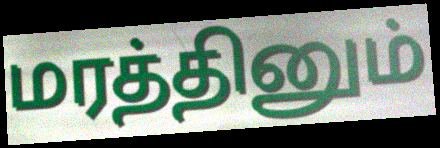
மரத்தினும்